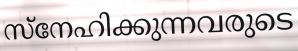
സ്നേഹിക്കുന്നവരുടെ